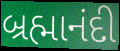
બ્રહ્માનંદી